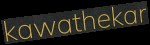
kawathekar